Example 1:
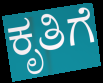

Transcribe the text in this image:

ಕೃತಿಗೆ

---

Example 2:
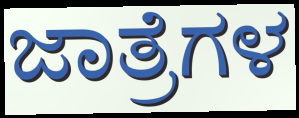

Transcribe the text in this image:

ಜಾತ್ರೆಗಳ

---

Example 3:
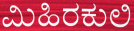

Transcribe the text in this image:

ಮಿಹಿರಕುಲಿ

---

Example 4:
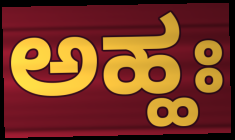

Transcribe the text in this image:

ಅಹ್ಹಃ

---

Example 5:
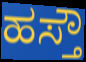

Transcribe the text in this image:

ಹಸ್ತೌ